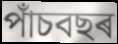
পাঁচবছৰ